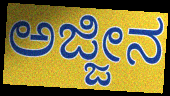
ಅಜ್ಜೀನ